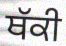
ਥੱਕੀ